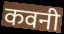
कवनी